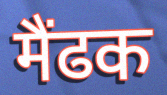
मैंढक